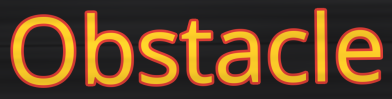
Obstacle